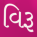
વિરૂ